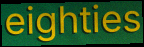
eighties